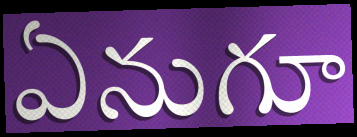
ఏనుగూ